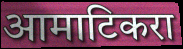
आमाटिकरा